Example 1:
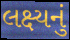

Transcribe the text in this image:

લક્ષ્યનું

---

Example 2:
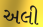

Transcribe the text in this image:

અલી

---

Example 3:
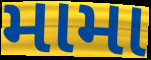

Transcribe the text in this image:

મામા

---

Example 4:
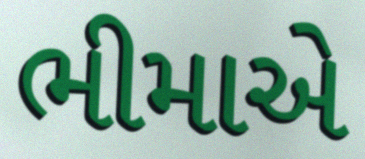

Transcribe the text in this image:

ભીમાએ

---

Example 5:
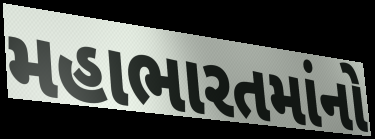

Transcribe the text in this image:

મહાભારતમાંનો